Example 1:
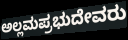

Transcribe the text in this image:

ಅಲ್ಲಮಪ್ರಭುದೇವರು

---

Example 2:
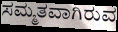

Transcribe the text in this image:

ಸಮ್ಮತವಾಗಿರುವ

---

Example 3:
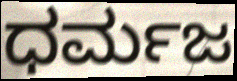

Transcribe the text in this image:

ಧರ್ಮಜ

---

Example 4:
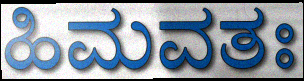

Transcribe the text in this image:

ಹಿಮವತಃ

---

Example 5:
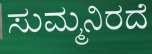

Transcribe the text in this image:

ಸುಮ್ಮನಿರದೆ